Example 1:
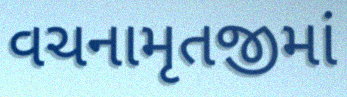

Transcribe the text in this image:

વચનામૃતજીમાં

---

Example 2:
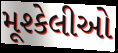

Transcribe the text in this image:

મૂશ્કેલીઓ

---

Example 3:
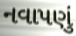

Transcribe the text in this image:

નવાપણું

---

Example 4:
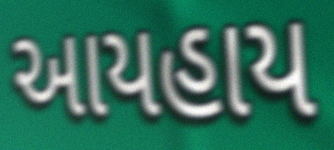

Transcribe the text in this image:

આયહાય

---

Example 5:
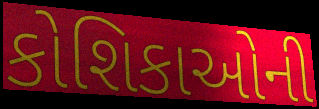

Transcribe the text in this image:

કોશિકાઓની